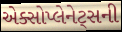
એક્સોપ્લેનેટ્સની